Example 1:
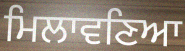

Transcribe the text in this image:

ਮਿਲਾਵਣਿਆ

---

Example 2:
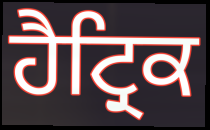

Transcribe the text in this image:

ਹੈਟ੍ਰਿਕ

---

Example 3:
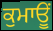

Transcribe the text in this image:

ਕੁਮਾਊਂ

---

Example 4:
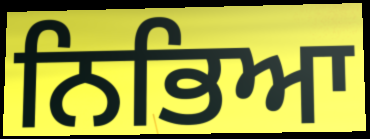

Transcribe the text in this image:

ਨਿਭਿਆ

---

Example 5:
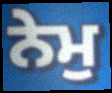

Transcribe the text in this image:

ਨੇਮੁ